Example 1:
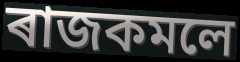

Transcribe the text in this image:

ৰাজকমলে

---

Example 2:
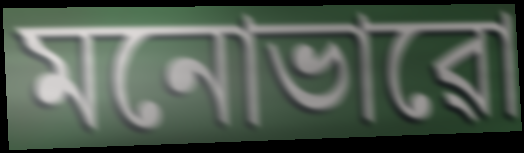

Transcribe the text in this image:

মনোভাৱো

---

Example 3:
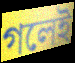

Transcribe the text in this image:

গলেই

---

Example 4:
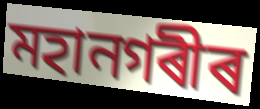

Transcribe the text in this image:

মহানগৰীৰ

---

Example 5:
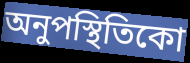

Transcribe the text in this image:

অনুপস্থিতিকো